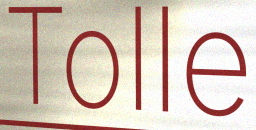
Tolle